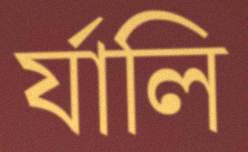
র্যালি